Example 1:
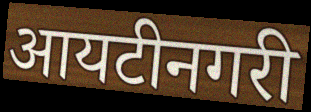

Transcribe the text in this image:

आयटीनगरी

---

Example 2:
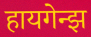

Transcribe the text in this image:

हायगेन्झ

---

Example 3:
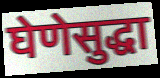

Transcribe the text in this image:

घेणेसुद्धा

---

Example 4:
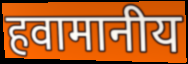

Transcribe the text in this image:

हवामानीय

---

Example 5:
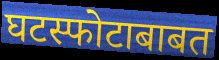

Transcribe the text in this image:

घटस्फोटाबाबत